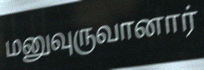
மனுவுருவானார்